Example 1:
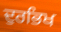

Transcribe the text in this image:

ਦੁਰਭਿਖ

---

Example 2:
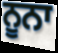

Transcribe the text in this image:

ਨੂਨਾ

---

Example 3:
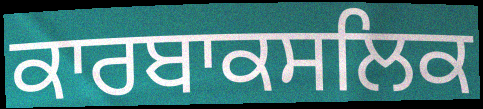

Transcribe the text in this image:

ਕਾਰਬਾਕਸਲਿਕ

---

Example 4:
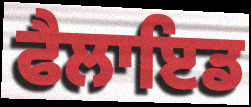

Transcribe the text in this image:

ਫੈਲਾਇਡ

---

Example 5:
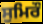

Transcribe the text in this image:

ਸੁਮਿਰੌ